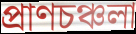
প্রাণচঞ্চলা